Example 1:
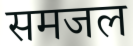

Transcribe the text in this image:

समजल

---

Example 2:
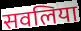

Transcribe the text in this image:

सवलिया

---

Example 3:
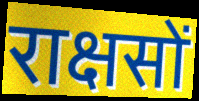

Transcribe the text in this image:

राक्षसों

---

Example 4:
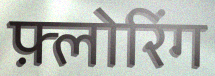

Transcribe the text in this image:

फ़्लोरिंग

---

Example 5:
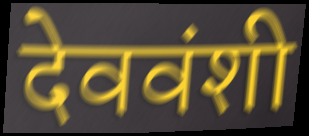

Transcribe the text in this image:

देववंशी